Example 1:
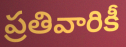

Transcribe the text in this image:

ప్రతివారికీ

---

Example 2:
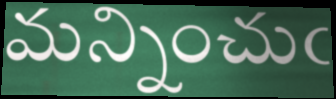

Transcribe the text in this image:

మన్నించుఁ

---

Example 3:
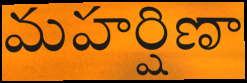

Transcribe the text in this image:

మహర్షిణా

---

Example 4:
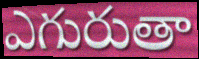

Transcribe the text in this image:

ఎగురుతా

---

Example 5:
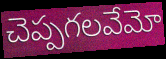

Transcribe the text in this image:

చెప్పగలవేమో